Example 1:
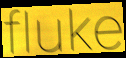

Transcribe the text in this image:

fluke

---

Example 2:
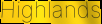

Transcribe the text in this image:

Highlands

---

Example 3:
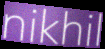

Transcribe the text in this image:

nikhil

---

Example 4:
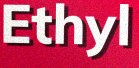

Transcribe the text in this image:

Ethyl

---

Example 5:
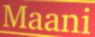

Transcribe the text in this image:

Maani